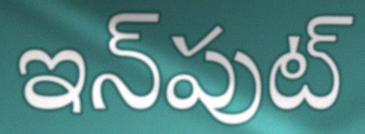
ఇన్‌పుట్